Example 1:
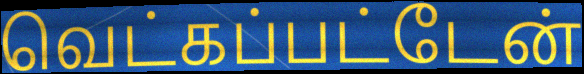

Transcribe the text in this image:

வெட்கப்பட்டேன்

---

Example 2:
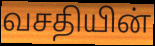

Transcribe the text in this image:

வசதியின்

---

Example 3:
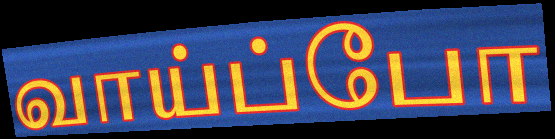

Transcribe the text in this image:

வாய்ப்போ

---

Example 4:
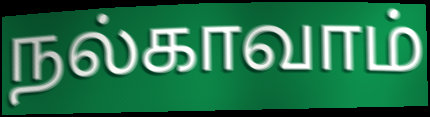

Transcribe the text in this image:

நல்காவாம்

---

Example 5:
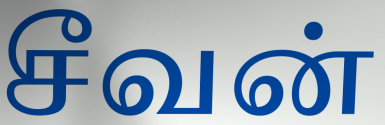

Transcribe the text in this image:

சீவன்